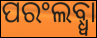
ପରଂଲବ୍ଧ୍ଵା